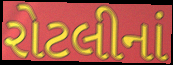
રોટલીનાં